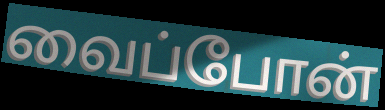
வைப்போன்